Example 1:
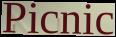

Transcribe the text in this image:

Picnic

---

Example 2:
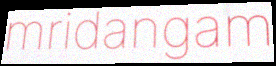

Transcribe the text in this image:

mridangam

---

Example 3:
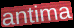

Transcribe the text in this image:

antima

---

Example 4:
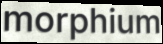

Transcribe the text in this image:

morphium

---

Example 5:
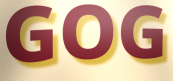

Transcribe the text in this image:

GOG